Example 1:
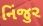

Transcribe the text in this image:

નિંજુર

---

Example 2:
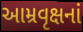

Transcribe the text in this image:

આમ્રવૃક્ષનાં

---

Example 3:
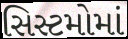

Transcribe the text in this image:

સિસ્ટમોમાં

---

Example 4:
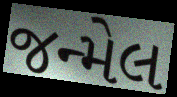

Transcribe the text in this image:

જન્મેલ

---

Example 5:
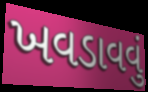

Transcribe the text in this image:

ખવડાવવું